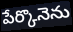
పేర్కొనెను